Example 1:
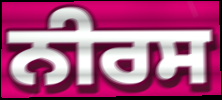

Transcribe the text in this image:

ਨੀਰਸ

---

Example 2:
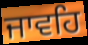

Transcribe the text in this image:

ਜਾਵਹਿ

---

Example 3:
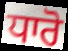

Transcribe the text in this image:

ਧਾਰੋ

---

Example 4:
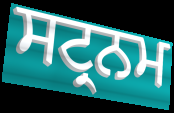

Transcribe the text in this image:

ਸਟ੍ਰਨਮ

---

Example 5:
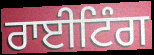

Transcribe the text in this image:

ਰਾਈਟਿੰਗ